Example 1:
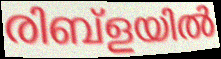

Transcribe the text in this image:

രിബ്ളയിൽ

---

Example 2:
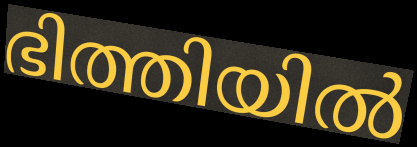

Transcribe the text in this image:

ഭിത്തിയിൽ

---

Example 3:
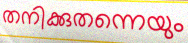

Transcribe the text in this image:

തനിക്കുതന്നെയും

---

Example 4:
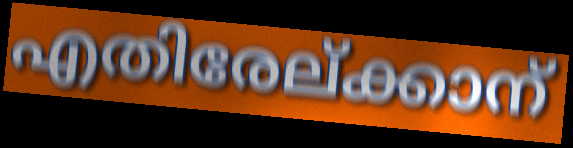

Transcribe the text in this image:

എതിരേല്ക്കാന്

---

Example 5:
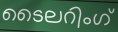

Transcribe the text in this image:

ടൈലറിംഗ്